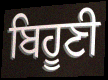
ਬਿਹੂਣੀ